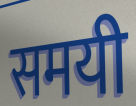
समयी